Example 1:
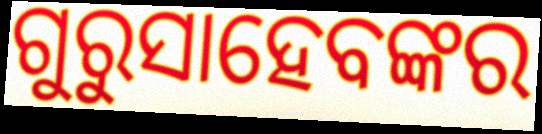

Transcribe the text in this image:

ଗୁରୁସାହେବଙ୍କର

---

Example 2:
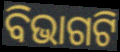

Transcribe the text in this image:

ବିଭାଗଟି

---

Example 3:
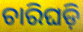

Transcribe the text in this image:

ଚାରିଘଡ଼ି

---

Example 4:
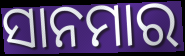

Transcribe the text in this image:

ସାନମାର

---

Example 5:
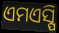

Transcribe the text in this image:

ଏମଏସ୍ପି